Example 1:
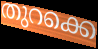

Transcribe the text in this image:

തുറക്കെ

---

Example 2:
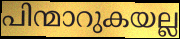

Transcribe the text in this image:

പിന്മാറുകയല്ല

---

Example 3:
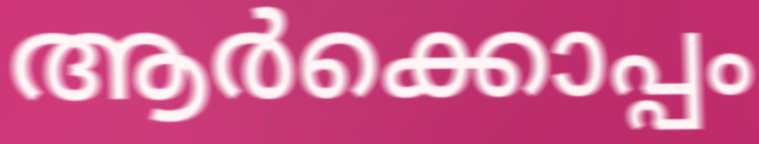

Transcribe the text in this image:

ആർക്കൊപ്പം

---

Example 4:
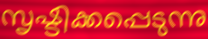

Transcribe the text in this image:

സൃഷ്ടിക്കപ്പെടുന്നു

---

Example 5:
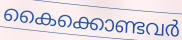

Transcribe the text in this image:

കൈക്കൊണ്ടവർ